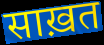
साख़त